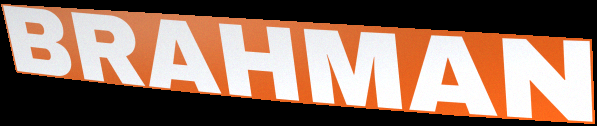
BRAHMAN